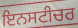
ਇਨਸਟੀਚਰ